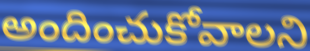
అందించుకోవాలని